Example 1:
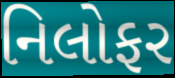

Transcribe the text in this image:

નિલોફર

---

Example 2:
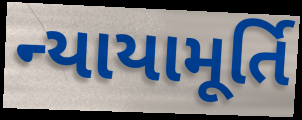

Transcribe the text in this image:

ન્યાયામૂર્તિ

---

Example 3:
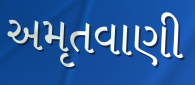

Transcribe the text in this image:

અમૃતવાણી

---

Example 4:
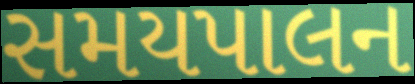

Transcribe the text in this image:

સમયપાલન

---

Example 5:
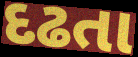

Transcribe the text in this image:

દઢતા